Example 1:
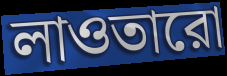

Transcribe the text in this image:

লাওতারো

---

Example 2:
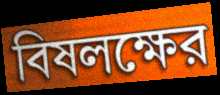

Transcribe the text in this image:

বিষলক্ষের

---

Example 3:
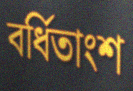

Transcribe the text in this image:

বর্ধিতাংশ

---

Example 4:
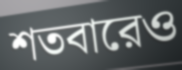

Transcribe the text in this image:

শতবারেও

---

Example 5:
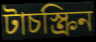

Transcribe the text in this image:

টাচস্ক্রিন